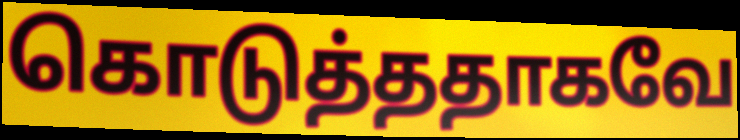
கொடுத்ததாகவே